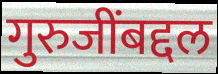
गुरुजींबद्दल